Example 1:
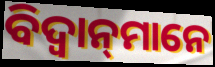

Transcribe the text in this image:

ବିଦ୍ୱାନ୍‌ମାନେ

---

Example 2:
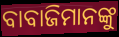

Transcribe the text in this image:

ବାବାଜିମାନଙ୍କୁ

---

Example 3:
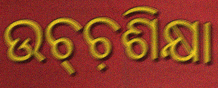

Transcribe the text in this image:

ଉଚ୍ଚ଼ଶିକ୍ଷା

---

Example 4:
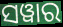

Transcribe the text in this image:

ସୱାର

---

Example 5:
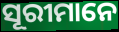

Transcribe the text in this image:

ସୂରୀମାନେ